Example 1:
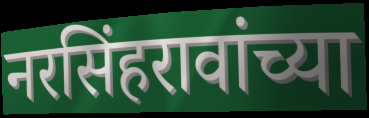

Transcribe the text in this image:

नरसिंहरावांच्या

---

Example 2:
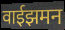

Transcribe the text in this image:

वाईझमन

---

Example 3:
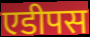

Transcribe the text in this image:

एडीपस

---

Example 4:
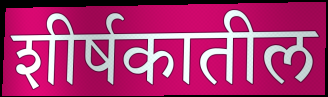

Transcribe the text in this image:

शीर्षकातील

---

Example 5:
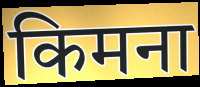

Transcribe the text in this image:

किमना